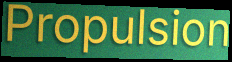
Propulsion